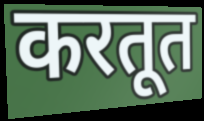
करतूत